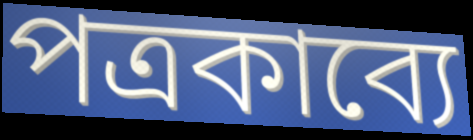
পত্রকাব্যে